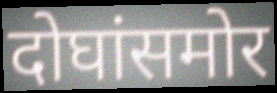
दोघांसमोर